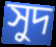
সুদ